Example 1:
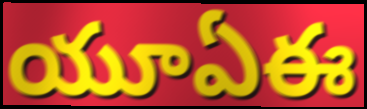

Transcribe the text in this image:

యూఏఈ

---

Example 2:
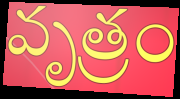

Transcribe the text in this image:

వృత్రం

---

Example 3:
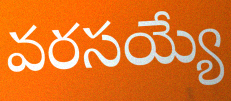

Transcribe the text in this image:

వరసయ్యే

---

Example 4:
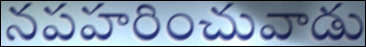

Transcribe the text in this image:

నపహరించువాడు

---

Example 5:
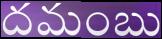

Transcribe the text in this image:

దమంబు